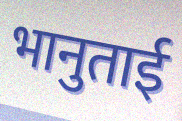
भानुताई